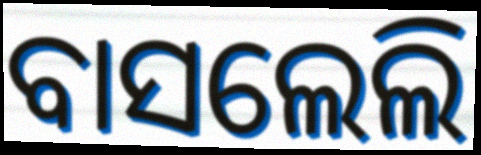
ବାସଲେଲି